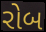
રોબ